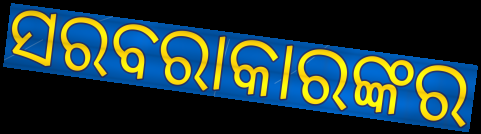
ସରବରାକାରଙ୍କର